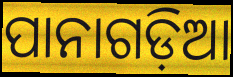
ପାନାଗଡ଼ିଆ